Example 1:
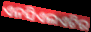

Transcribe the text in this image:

ଏନସିଏଲଏଟିର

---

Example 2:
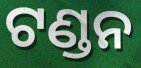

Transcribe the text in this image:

ଟଣ୍ଡନ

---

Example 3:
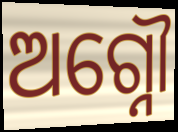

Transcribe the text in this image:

ଅଗ୍ନୌ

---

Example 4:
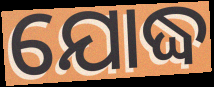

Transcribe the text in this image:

ଯୋଦ୍ଧ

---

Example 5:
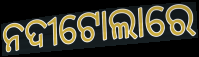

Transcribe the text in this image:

ନଦୀଟୋଲାରେ